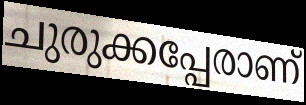
ചുരുക്കപ്പേരാണ്